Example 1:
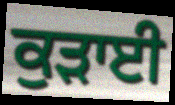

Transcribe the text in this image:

ਕੁੜਾਈ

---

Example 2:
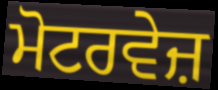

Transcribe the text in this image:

ਮੋਟਰਵੇਜ਼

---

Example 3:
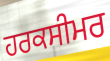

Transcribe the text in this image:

ਹਰਕਸੀਮਰ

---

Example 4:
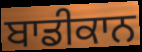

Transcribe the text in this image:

ਬਾਡੀਕਾਨ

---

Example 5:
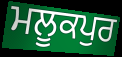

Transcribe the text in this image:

ਮਲੂਕਪੁਰ